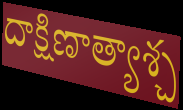
దాక్షిణాత్యాశ్చ